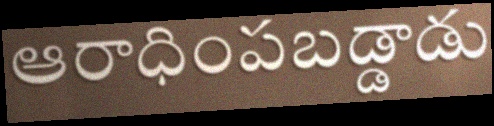
ఆరాధింపబడ్డాడు